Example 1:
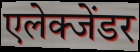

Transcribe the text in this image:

एलेक्‍जेंडर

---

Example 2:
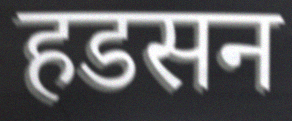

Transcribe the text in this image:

हडसन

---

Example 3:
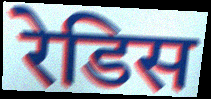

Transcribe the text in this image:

रेडिस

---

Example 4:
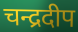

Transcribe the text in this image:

चन्द्रदीप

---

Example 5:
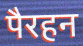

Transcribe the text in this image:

पैरहन